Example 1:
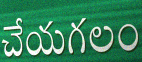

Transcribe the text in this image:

చేయగలం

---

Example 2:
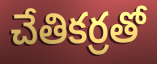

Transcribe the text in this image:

చేతికర్రతో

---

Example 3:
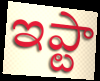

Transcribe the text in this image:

ఇప్టా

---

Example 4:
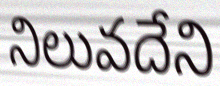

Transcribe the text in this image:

నిలువదేని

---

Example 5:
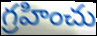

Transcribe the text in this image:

గ్రహించు